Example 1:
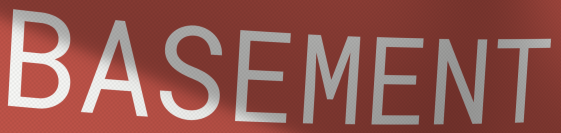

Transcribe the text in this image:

BASEMENT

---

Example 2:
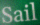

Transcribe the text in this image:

Sail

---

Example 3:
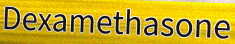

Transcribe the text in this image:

Dexamethasone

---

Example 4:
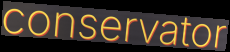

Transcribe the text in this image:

conservator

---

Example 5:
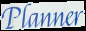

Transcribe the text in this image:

Planner